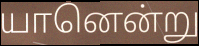
யானென்று